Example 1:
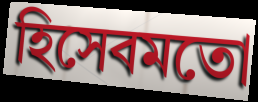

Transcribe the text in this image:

হিসেবমতো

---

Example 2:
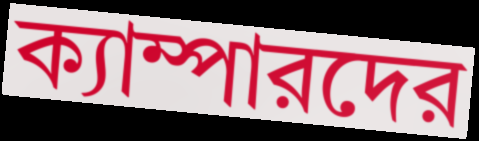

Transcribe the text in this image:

ক্যাম্পারদের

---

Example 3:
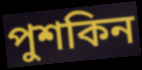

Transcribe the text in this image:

পুশকিন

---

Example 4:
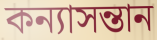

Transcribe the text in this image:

কন্যাসন্তান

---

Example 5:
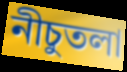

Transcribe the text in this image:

নীচুতলা